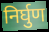
निर्घुण